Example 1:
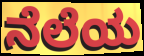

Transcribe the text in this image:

ನೆಲೆಯ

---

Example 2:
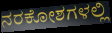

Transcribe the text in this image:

ನರಕೋಶಗಳಲ್ಲಿ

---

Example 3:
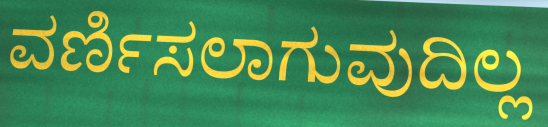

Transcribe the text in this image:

ವರ್ಣಿಸಲಾಗುವುದಿಲ್ಲ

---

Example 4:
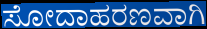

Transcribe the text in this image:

ಸೋದಾಹರಣವಾಗಿ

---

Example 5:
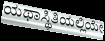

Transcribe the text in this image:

ಯಥಾಸ್ಥಿತಿಯಲ್ಲಿಯೇ